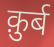
क़ुर्ब